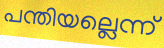
പന്തിയല്ലെന്ന്